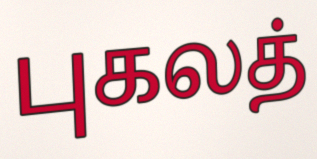
புகலத்